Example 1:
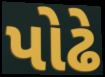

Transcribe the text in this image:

પોઢે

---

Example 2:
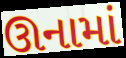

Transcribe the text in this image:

ઊનામાં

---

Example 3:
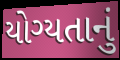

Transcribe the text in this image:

યોગ્યતાનું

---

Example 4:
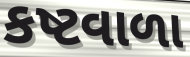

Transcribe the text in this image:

કષ્ટવાળા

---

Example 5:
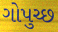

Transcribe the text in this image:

ગોપુચ્છ